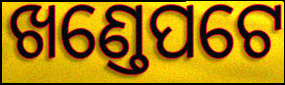
ଖଣ୍ଡେପଟେ